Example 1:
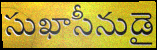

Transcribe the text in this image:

సుఖాసీనుడై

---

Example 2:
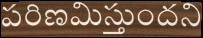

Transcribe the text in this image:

పరిణమిస్తుందని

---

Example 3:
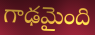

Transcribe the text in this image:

గాఢమైంది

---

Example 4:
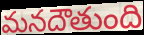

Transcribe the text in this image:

మనదౌతుంది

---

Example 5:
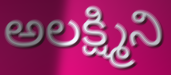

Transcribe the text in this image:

అలక్ష్మిని